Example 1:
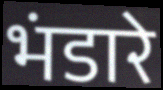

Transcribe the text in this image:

भंडारे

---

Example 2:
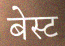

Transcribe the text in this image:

बेस्ट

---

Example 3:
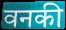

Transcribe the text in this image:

वनकी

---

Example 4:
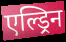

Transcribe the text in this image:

एल्ड्रिन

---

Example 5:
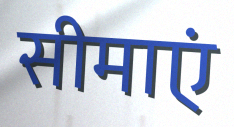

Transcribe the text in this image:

सीमाएं